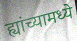
ह्यांच्यामध्ये